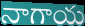
నాగాయ